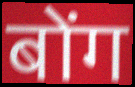
बोंग